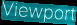
Viewport